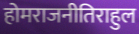
होमराजनीतिराहुल